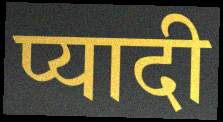
प्यादी